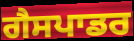
ਗੈਸਪਾਡਰ